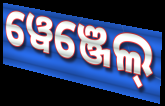
ୱେଞ୍ଜେଲ୍